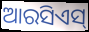
ଆରସିଏସ୍